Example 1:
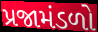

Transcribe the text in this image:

પ્રજામંડળો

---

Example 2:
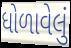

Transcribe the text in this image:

ધોળાવેલું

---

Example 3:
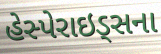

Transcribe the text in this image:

હેસ્પેરાઇડ્સના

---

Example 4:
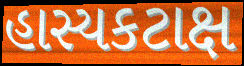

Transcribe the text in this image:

હાસ્યકટાક્ષ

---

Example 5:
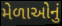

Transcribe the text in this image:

મેળાઓનું